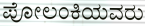
ಪೋಲಂಕಿಯವರು